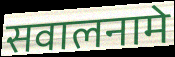
सवालनामे